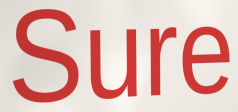
Sure